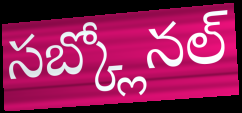
సబ్క్లోనల్